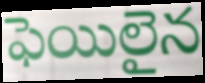
ఫెయిలైన